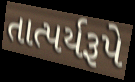
તાત્પર્યરૂપે